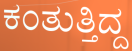
ಕಂತುತ್ತಿದ್ದ